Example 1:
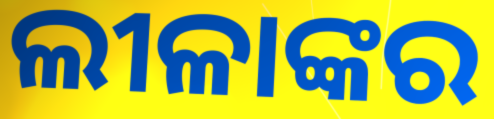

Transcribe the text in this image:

ଲୀଳାଙ୍କର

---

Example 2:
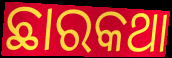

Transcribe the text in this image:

ଛାରକଥା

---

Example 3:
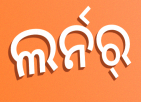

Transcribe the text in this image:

ଲର୍ନର୍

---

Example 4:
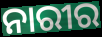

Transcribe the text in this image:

ନାରୀର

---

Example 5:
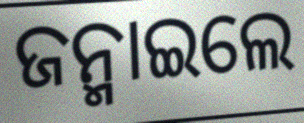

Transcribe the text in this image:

ଜନ୍ମାଇଲେ